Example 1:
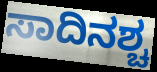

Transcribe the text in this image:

ಸಾದಿನಶ್ಚ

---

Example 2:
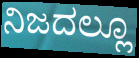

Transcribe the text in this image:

ನಿಜದಲ್ಲೂ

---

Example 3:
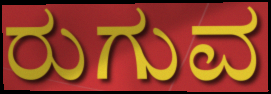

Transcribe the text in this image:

ರುಗುವ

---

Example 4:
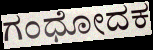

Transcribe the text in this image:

ಗಂಧೋದಕ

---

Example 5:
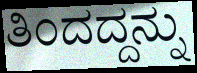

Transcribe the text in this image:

ತಿಂದದ್ದನ್ನು